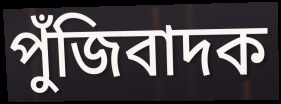
পুঁজিবাদক